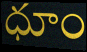
ధూం